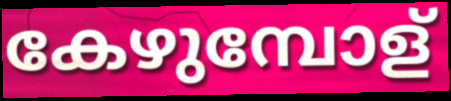
കേഴുമ്പോള്